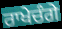
ਰਾਖੇਚੰਗੇ